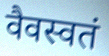
वैवस्वतं